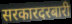
सरकारदरबारी